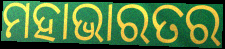
ମହାଭାରତର